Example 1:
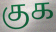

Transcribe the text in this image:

குக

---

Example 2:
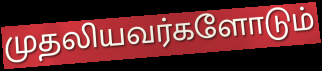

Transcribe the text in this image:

முதலியவர்களோடும்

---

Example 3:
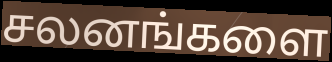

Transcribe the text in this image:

சலனங்களை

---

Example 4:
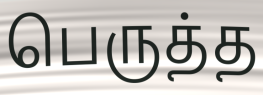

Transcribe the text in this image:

பெருத்த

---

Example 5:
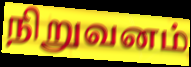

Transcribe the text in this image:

நிறுவனம்